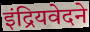
इंद्रियवेदने